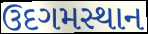
ઉદગમસ્થાન